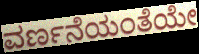
ವರ್ಣನೆಯಂತೆಯೇ